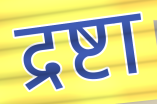
द्रष्टा